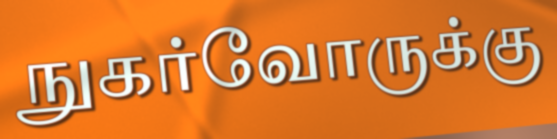
நுகர்வோருக்கு